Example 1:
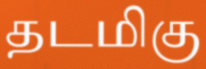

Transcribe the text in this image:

தடமிகு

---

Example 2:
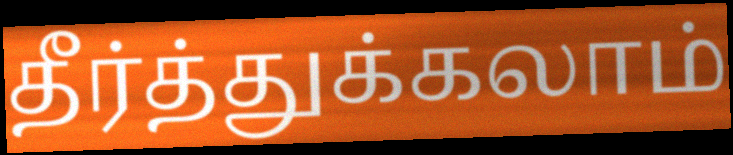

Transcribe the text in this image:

தீர்த்துக்கலாம்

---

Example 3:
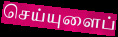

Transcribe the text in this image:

செய்யுளைப்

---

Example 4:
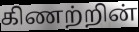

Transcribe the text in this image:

கிணற்றின்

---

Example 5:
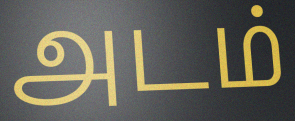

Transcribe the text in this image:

அடம்